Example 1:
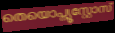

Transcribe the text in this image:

തെയൊപ്ന്യൂസ്റ്റോസ്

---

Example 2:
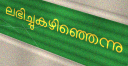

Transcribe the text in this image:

ലഭിച്ചുകഴിഞ്ഞെന്നു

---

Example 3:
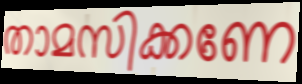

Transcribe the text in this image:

താമസിക്കണേ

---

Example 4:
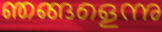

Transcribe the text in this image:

ഞങ്ങളെന്നു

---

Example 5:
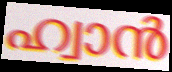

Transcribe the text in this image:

ഹ്വാൻ